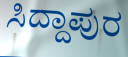
ಸಿದ್ದಾಪುರ